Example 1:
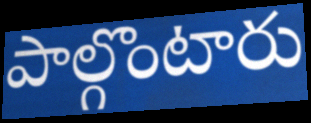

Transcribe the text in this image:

పాల్గొంటారు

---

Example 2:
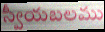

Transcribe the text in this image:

స్వీయబలము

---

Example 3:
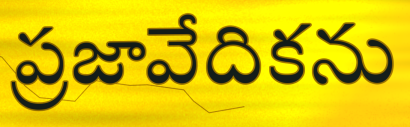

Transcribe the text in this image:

ప్రజావేదికను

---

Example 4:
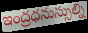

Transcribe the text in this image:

ఇంద్రధనుస్సుల్ని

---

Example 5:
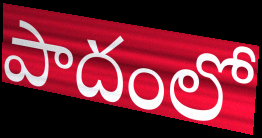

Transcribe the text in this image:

పాదంలో